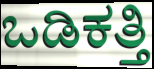
ಒಡಿಕತ್ತಿ